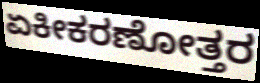
ಏಕೀಕರಣೋತ್ತರ